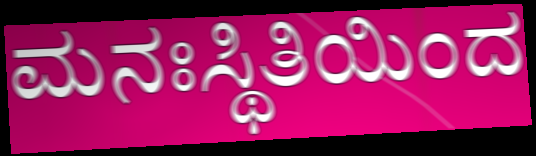
ಮನಃಸ್ಥಿತಿಯಿಂದ